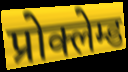
प्रोक्लेम्ड